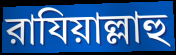
রাযিয়াল্লাহু